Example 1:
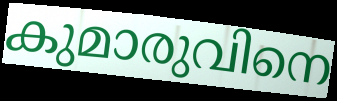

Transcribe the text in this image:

കുമാരുവിനെ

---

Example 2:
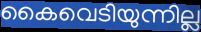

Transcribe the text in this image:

കൈവെടിയുന്നില്ല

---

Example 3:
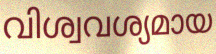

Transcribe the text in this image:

വിശ്വവശ്യമായ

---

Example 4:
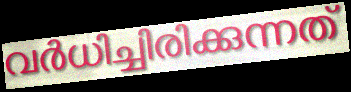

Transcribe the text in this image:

വർധിച്ചിരിക്കുന്നത്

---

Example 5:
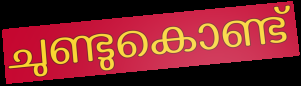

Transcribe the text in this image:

ചുണ്ടുകൊണ്ട്